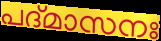
പദ്മാസനഃ